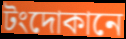
টংদোকানে